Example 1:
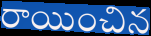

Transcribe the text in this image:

రాయించిన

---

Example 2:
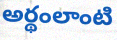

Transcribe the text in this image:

అర్థంలాంటి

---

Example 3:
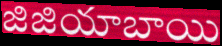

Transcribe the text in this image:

జిజియాబాయి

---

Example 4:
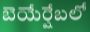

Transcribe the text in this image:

బెయేర్షేబలో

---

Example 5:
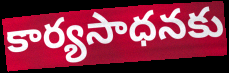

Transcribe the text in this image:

కార్యసాధనకు